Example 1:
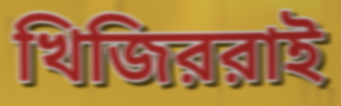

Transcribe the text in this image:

খিজিররাই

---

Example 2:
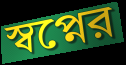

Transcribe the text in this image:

স্বপ্নের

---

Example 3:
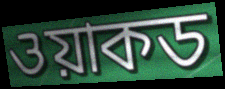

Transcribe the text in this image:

ওয়াকড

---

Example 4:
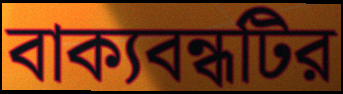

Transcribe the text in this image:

বাক্যবন্ধটির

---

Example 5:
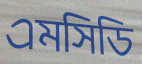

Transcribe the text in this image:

এমসিডি